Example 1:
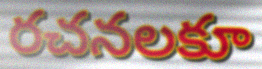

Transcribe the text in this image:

రచనలకూ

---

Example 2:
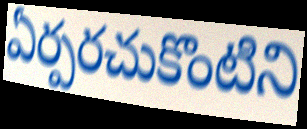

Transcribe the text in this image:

ఏర్పరచుకొంటిని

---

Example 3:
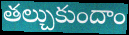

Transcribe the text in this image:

తల్చుకుందాం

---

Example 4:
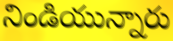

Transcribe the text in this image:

నిండియున్నారు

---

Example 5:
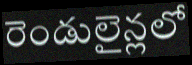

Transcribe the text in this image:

రెండులైన్లలో